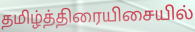
தமிழ்த்திரையிசையில்